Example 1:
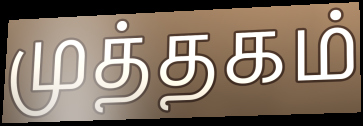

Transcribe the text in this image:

முத்தகம்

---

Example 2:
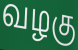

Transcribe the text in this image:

வழகு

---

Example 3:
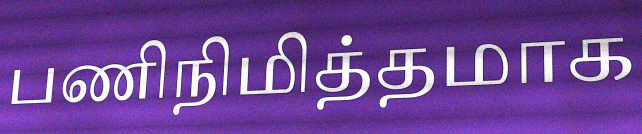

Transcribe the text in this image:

பணிநிமித்தமாக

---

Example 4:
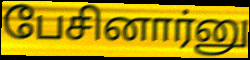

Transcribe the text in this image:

பேசினார்னு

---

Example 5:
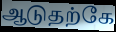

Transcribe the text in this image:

ஆடுதற்கே